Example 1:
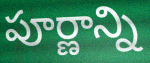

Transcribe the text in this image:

పూర్ణాన్ని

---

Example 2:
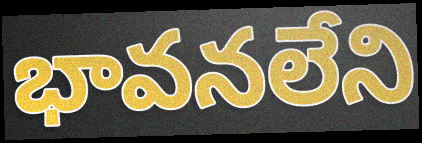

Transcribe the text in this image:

భావనలేని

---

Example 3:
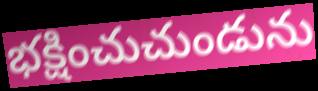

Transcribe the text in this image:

భక్షించుచుండును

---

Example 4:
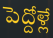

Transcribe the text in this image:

పెద్దోళ్లే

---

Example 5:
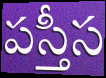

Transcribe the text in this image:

పస్తీస